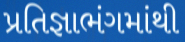
પ્રતિજ્ઞાભંગમાંથી